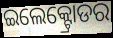
ଇଲେକ୍ଟ୍ରୋଡର